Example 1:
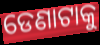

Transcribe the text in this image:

ଡେଣାଟାକୁ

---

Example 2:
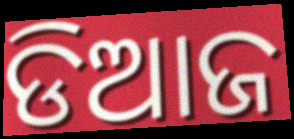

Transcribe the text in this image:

ଡିଆଜ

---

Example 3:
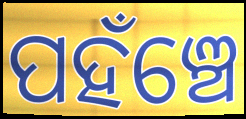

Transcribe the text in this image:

ପହଁଞ୍ଚେ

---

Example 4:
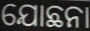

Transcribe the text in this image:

ଯୋଛନା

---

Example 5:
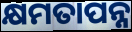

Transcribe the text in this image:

କ୍ଷମତାପନ୍ନ